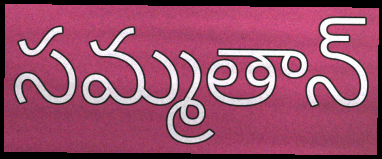
సమ్మతాన్